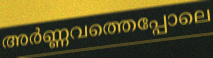
അർണ്ണവത്തെപ്പോലെ